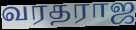
வரதராஜ